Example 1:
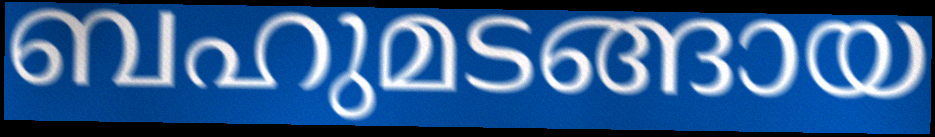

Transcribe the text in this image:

ബഹുമടങ്ങായ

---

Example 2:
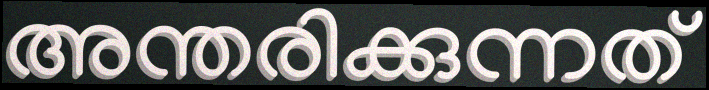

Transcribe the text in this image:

അന്തരിക്കുന്നത്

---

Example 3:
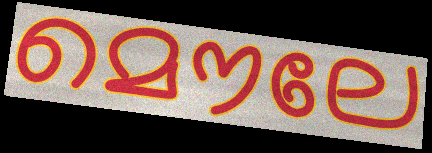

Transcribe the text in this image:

മൌലേ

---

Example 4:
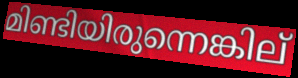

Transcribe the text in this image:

മിണ്ടിയിരുന്നെങ്കില്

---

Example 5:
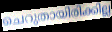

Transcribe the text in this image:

ചെറുതായിരിക്കില്ല